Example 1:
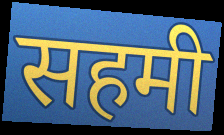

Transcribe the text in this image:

सहमी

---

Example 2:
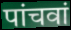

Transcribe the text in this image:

पांचवां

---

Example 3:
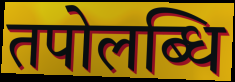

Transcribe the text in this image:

तपोलब्धि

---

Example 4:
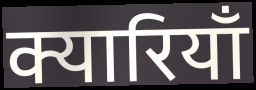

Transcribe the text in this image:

क्यारियाँ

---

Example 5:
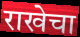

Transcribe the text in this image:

राखेचा